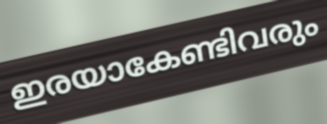
ഇരയാകേണ്ടിവരും